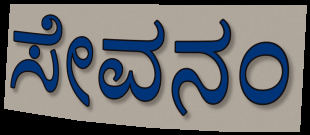
ಸೇವನಂ